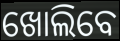
ଖୋଲିବେ